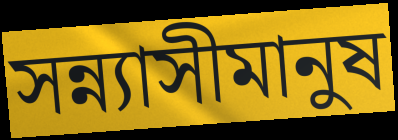
সন্ন্যাসীমানুষ